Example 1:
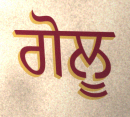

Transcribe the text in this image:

ਗੋਲੂ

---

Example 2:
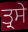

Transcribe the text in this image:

ਤ੍ਰਸੇ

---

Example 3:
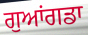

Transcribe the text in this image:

ਗੁਆਂਗਡਾ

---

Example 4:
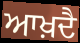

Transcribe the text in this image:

ਆਖ਼ਦੈ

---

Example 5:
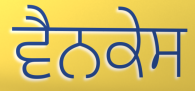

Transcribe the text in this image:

ਵੈਨਕੇਸ